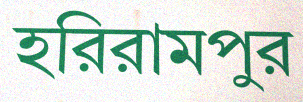
হরিরামপুর